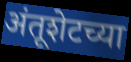
अंतूशेटच्या